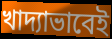
খাদ্যাভাবেই